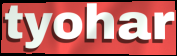
tyohar